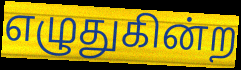
எழுதுகின்ற